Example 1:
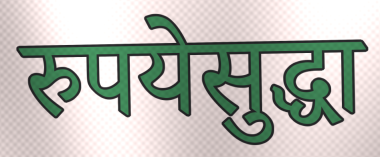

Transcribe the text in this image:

रुपयेसुद्धा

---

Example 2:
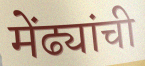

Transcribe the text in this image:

मेंढ्यांची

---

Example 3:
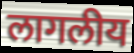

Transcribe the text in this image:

लागलीय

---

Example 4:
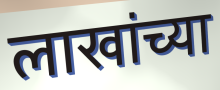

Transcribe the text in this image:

लाखांच्या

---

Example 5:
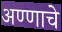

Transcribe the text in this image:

अण्णाचे